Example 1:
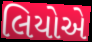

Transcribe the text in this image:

લિયોએ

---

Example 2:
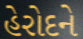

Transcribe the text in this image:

હેરોદને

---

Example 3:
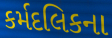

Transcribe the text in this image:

કર્મદલિકના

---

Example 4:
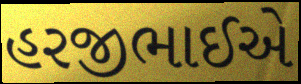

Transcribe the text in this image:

હરજીભાઈએ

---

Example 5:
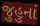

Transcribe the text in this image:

જુહુનાં